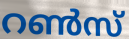
റൺസ്